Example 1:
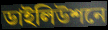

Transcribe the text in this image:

ডাইলিউশনে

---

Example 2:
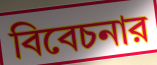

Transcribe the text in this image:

বিবেচনার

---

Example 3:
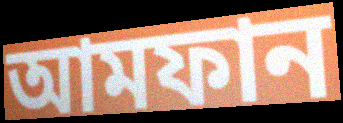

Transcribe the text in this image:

আমফান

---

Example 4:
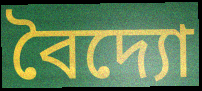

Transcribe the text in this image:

বৈদ্যো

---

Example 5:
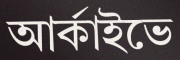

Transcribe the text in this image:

আর্কাইভে